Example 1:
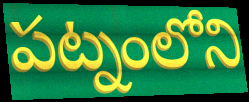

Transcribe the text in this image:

పట్నంలోని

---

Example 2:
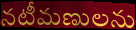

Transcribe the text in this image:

నటీమణులను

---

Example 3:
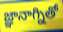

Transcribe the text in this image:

జ్ఞానాగ్నితో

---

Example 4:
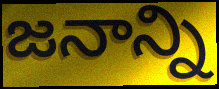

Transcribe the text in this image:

జనాన్ని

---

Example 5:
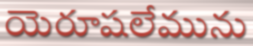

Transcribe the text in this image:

యెరూషలేమును